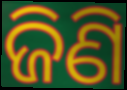
ଜିଣି